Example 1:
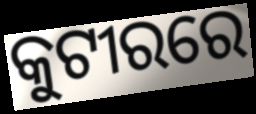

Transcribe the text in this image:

କୁଟୀରରେ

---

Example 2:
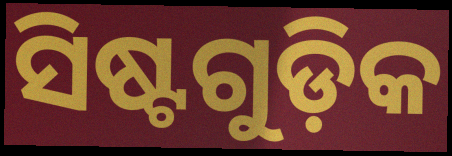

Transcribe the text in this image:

ସିଷ୍ଟଗୁଡ଼ିକ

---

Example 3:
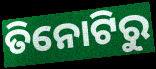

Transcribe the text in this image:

ତିନୋଟିରୁ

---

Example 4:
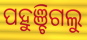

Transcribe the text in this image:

ପହୁଞ୍ଚିଗଲୁ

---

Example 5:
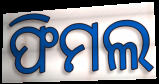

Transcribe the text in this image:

ଫିମଲ